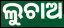
ଲୁଚାଅ